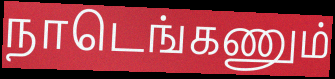
நாடெங்கணும்